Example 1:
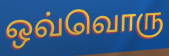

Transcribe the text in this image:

ஒவ்வொரு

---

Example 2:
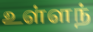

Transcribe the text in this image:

உள்ளந்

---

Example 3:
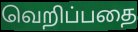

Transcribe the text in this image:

வெறிப்பதை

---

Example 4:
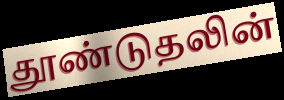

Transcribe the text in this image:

தூண்டுதலின்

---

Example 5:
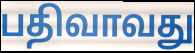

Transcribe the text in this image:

பதிவாவது